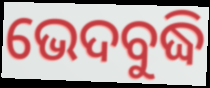
ଭେଦବୁଦ୍ଧି